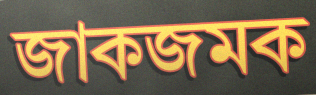
জাকজমক